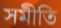
সমীতি